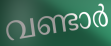
വണ്ടാർ